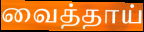
வைத்தாய்